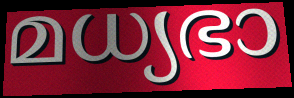
മധ്യഭാ